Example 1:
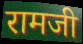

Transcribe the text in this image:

रामजी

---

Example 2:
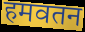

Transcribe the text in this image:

हमवतन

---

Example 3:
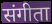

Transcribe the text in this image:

संगीता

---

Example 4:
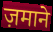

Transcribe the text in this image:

ज़माने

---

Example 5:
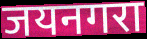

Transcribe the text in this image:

जयनगरा